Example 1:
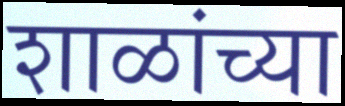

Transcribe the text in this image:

शाळांच्या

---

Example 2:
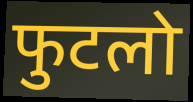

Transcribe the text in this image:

फुटलो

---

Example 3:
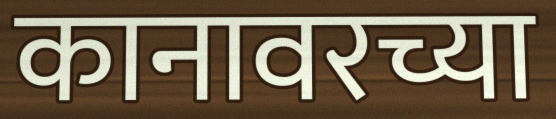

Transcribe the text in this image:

कानावरच्या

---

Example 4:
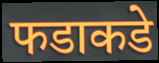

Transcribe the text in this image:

फडाकडे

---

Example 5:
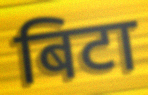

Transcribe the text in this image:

बिटा